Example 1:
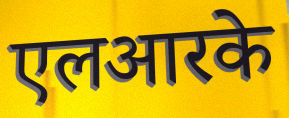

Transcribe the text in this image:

एलआरके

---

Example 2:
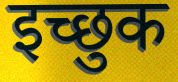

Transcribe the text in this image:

इच्‍छुक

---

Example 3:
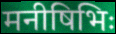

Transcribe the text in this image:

मनीषिभिः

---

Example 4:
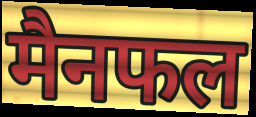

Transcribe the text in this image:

मैनफल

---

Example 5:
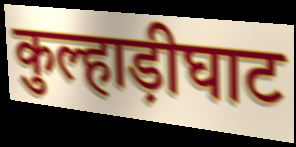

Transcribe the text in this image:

कुल्हाड़ीघाट